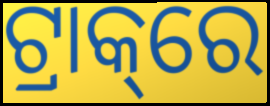
ଟ୍ରାକ୍‌ରେ